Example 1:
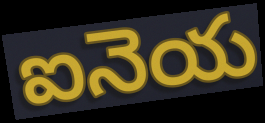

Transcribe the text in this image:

ఐనెయ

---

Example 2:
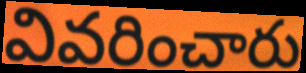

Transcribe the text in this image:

వివరించారు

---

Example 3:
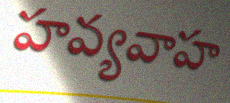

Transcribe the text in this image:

హవ్యవాహ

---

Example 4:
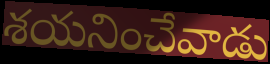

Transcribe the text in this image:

శయనించేవాడు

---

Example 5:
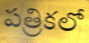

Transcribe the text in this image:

పత్రికలో